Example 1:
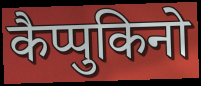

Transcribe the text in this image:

कैप्पुकिनो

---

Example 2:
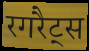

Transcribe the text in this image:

रगरैट्स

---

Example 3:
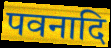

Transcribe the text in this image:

पवनादि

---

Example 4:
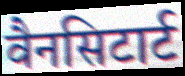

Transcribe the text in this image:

वैनसिटार्ट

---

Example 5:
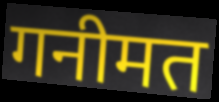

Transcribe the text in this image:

गनीमत